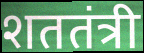
शततंत्री